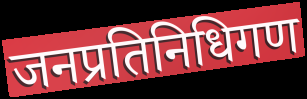
जनप्रतिनिधिगण